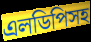
এলডিপিসহ